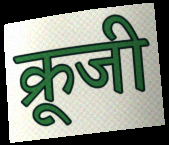
क्रूजी